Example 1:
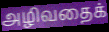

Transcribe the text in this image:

அழிவதைக்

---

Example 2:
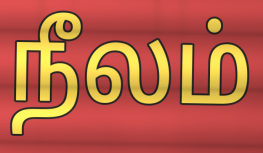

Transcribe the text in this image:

நீலம்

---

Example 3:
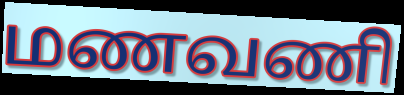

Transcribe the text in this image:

மணவணி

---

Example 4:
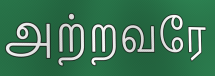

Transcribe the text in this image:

அற்றவரே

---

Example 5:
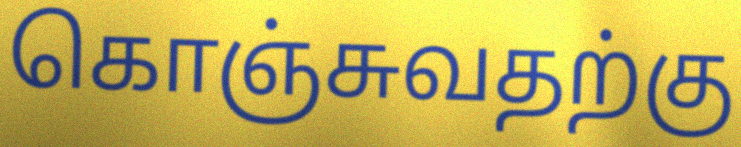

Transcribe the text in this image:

கொஞ்சுவதற்கு